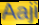
Aaji